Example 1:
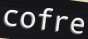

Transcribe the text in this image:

cofre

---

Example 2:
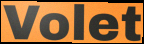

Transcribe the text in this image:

Volet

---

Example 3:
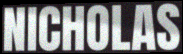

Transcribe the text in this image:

NICHOLAS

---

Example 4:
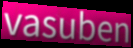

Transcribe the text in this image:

vasuben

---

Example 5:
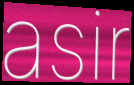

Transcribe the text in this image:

asir